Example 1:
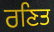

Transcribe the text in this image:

ਰਣਿਤ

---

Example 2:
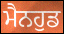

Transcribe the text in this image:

ਮੈਨਹੁਡ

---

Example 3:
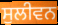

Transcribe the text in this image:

ਸੁਲੀਵਨ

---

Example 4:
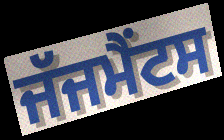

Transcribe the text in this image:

ਜੱਜਮੈਂਟਸ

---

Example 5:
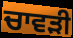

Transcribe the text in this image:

ਚਾਵੜੀ